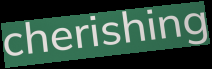
cherishing